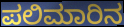
ಪಲಿಮಾರಿನ